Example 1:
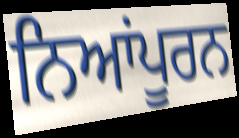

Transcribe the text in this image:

ਨਿਆਂਪੂਰਨ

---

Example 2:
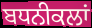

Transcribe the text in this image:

ਬਧਨੀਕਲਾਂ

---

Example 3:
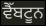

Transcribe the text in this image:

ਵੈੱਬਟੂਨ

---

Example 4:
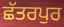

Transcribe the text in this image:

ਛੱਤਰਪੁਰ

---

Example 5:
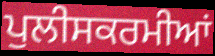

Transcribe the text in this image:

ਪੁਲੀਸਕਰਮੀਆਂ